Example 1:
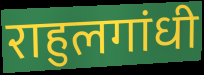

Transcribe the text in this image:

राहुलगांधी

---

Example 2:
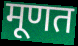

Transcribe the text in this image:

मूणत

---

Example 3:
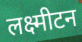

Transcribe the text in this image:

लक्ष्मीटन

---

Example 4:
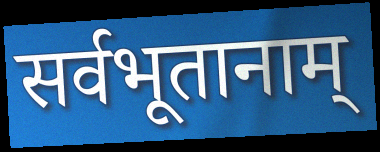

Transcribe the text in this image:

सर्वभूतानाम्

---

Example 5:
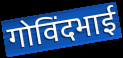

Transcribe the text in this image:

गोविंदभाई